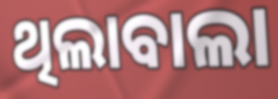
ଥିଲାବାଲା